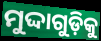
ମୁଦ୍ଦାଗୁଡ଼ିକୁ